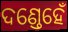
ଦଣ୍ଡେହେଁ